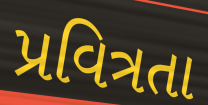
પ્રવિત્રતા